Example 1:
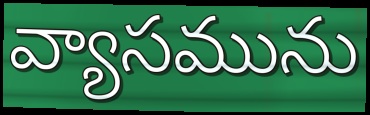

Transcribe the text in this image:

వ్యాసమును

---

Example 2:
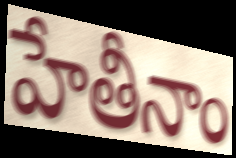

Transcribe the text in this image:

హేతీనాం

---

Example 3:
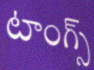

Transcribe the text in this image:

టాంగ్స్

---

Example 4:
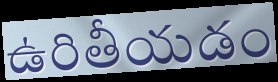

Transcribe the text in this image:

ఉరితీయడం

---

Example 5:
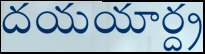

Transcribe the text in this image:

దయయార్ద్ర